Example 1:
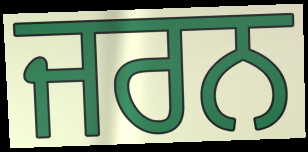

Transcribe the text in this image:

ਜਰਨ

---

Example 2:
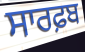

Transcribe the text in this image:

ਸਾਰਫ਼ਬ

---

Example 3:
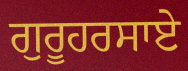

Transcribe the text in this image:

ਗੁਰੂਹਰਸਾਏ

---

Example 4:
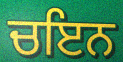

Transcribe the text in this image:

ਚਇਨ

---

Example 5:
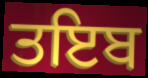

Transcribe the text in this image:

ਤਇਬ